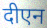
दीएन